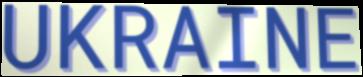
UKRAINE